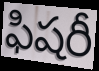
ఫిషరీ